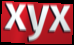
xyx